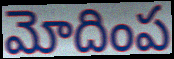
మోదింప